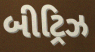
બીટ્રિઝ